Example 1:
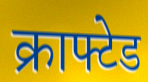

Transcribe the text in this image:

क्राफ्टेड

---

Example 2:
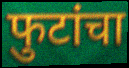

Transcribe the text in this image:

फुटांचा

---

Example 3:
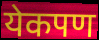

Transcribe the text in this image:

येकपण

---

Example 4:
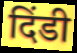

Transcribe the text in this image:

दिंडी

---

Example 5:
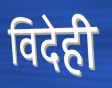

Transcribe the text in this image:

विदेही